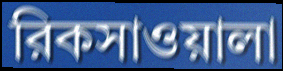
রিকসাওয়ালা